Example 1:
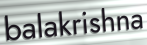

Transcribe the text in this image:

balakrishna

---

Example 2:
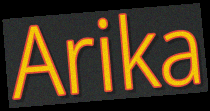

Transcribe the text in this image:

Arika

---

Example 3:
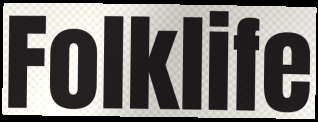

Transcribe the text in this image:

Folklife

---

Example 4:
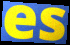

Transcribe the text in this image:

es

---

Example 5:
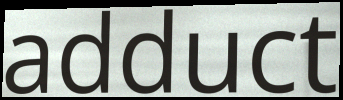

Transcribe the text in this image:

adduct